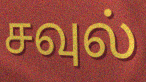
சவுல்